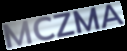
MCZMA